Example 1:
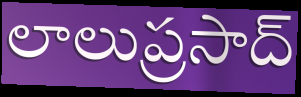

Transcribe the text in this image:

లాలుప్రసాద్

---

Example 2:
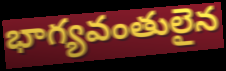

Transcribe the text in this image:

భాగ్యవంతులైన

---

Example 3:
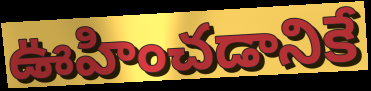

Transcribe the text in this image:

ఊహించడానికే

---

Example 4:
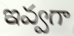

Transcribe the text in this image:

ఇవ్వగా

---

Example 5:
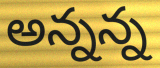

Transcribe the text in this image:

అన్నన్న